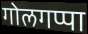
गोलगप्पा